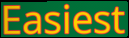
Easiest